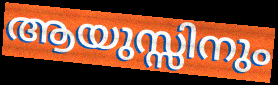
ആയുസ്സിനും